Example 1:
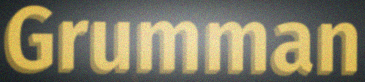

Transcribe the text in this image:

Grumman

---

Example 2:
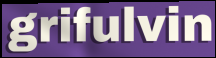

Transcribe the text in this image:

grifulvin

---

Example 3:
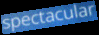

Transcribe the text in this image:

spectacular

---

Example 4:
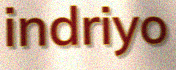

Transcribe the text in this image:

indriyo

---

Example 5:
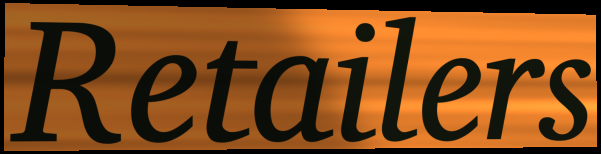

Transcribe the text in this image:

Retailers